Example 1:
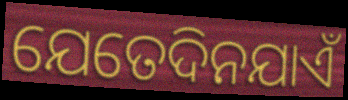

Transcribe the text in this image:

ଯେତେଦିନଯାଏଁ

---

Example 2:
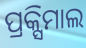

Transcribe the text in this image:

ପ୍ରକ୍ସିମାଲ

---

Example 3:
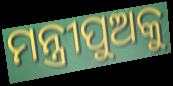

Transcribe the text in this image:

ମନ୍ତ୍ରୀପୁଅକୁ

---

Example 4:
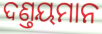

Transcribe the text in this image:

ଦଣ୍ତୟମାନ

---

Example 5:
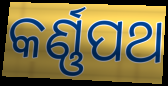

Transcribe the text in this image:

କର୍ଣ୍ଣପଥ